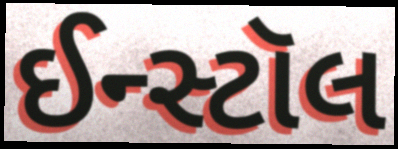
ઈન્સ્ટૉલ